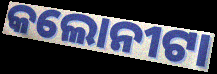
କଲୋନୀଟା